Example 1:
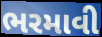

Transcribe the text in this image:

ભરમાવી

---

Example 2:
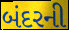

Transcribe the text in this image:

બંદરની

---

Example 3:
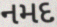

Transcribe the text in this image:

નમદ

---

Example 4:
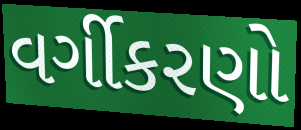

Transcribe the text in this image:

વર્ગીકરણો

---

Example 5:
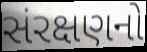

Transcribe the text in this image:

સંરક્ષણનો